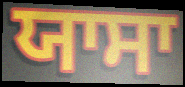
ਯਾਸਾ